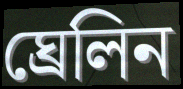
ঘ্ৰেলিন